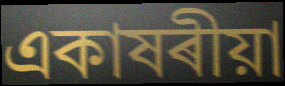
একাষৰীয়া